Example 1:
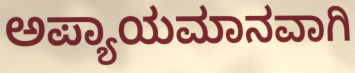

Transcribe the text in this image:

ಅಪ್ಯಾಯಮಾನವಾಗಿ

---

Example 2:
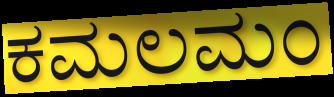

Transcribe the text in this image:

ಕಮಲಮಂ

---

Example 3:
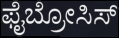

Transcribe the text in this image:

ಫೈಬ್ರೋಸಿಸ್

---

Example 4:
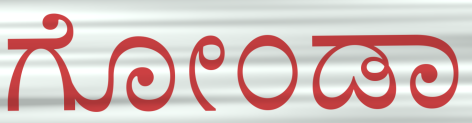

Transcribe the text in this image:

ಗೋಂಡಾ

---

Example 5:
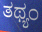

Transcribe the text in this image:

ತಥ್ಯಂ